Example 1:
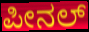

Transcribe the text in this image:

ಪೀನಲ್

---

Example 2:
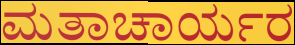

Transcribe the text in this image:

ಮತಾಚಾರ್ಯರ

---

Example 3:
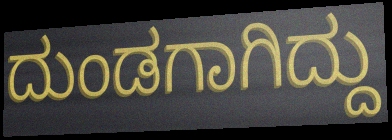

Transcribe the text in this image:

ದುಂಡಗಾಗಿದ್ದು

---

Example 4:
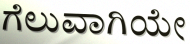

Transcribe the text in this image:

ಗೆಲುವಾಗಿಯೇ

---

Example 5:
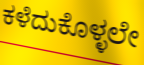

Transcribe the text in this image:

ಕಳೆದುಕೊಳ್ಳಲೇ